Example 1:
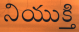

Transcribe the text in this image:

నియుక్తి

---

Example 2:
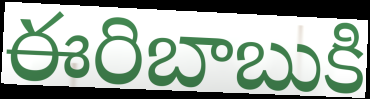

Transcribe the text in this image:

ఈరిబాబుకి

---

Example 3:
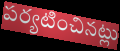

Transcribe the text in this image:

పర్యటించినట్లు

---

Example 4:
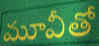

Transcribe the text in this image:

మూవీతో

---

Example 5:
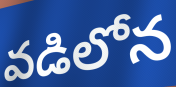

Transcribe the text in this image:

వడిలోన